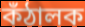
কঁঠালক